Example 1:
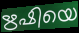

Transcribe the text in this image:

ഋഷിയെ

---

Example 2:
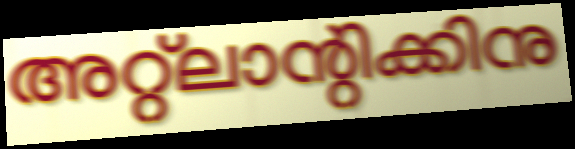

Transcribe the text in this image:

അറ്റ്ലാന്റിക്കിനു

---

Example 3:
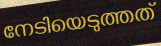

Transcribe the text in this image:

നേടിയെടുത്തത്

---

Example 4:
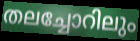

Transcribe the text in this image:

തലച്ചോറിലും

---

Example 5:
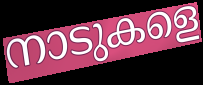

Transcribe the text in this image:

നാടുകളെ